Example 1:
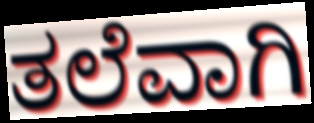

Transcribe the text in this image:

ತಲೆವಾಗಿ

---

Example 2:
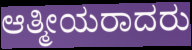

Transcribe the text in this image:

ಆತ್ಮೀಯರಾದರು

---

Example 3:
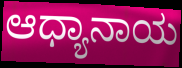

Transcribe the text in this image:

ಆಧ್ಯಾನಾಯ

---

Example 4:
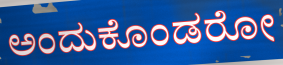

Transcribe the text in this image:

ಅಂದುಕೊಂಡರೋ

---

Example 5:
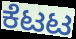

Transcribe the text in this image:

ಕೆಟಟ